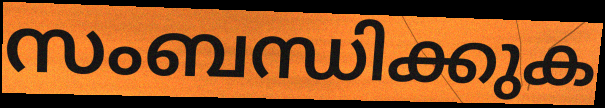
സംബന്ധിക്കുക